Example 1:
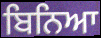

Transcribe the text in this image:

ਬਿਨਿਆ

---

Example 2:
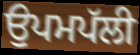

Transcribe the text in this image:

ਉਪਮਪੱਲੀ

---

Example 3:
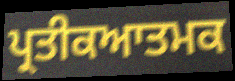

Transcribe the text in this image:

ਪ੍ਰਤੀਕਆਤਮਕ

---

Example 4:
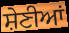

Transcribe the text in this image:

ਸ਼ੇਣੀਆਂ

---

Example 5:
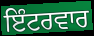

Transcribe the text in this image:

ਇੰਟਰਵਾਰ